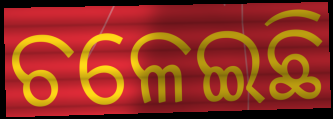
ଚଳେଇଛି